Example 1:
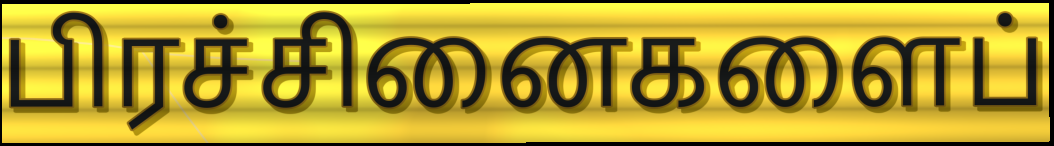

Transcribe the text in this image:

பிரச்சினைகளைப்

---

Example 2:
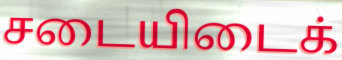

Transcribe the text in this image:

சடையிடைக்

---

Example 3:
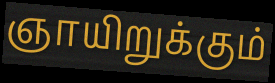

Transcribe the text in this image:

ஞாயிறுக்கும்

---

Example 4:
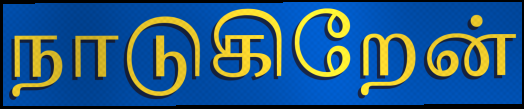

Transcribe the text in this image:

நாடுகிறேன்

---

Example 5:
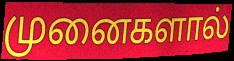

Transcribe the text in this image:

முனைகளால்